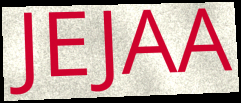
JEJAA